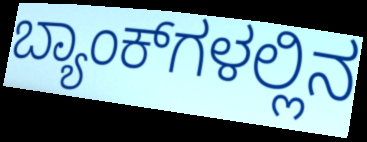
ಬ್ಯಾಂಕ್‌ಗಳಲ್ಲಿನ